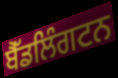
ਬੈੱਡਲਿੰਗਟਨ